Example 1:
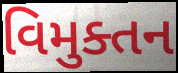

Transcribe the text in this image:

વિમુક્તન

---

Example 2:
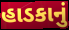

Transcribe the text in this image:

હાડકાનું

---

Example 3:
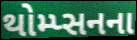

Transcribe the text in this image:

થોમ્પ્સનના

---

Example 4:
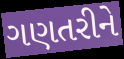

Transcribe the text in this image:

ગણતરીને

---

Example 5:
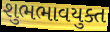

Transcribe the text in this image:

શુભભાવયુક્ત